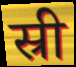
स्री